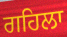
ਗਹਿਲਾ